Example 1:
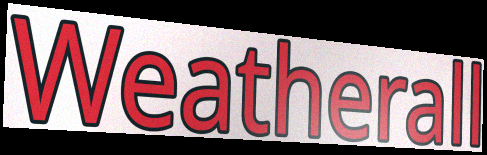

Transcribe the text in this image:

Weatherall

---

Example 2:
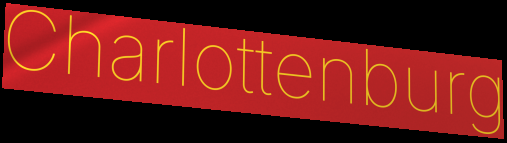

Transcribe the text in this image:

Charlottenburg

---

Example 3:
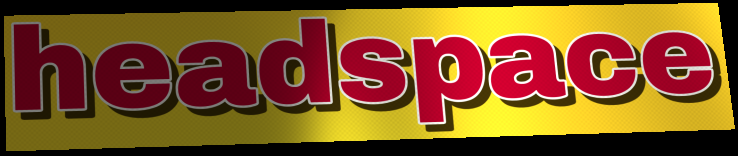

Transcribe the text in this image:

headspace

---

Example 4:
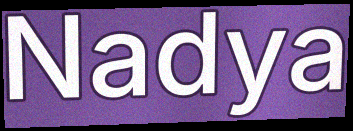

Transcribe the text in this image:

Nadya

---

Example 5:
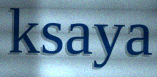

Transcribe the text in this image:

ksaya